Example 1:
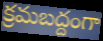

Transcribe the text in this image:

క్రమబద్దంగా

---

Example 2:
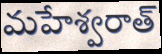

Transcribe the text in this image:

మహేశ్వరాత్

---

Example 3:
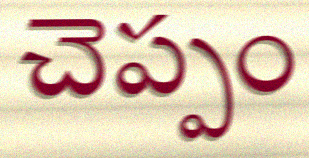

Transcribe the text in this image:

చెప్పం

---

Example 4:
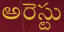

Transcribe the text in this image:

అరెస్టు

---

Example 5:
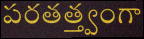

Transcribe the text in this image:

పరతత్త్వంగా